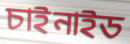
চাইনাইড